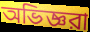
অভিজ্ঞরা